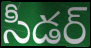
సీడర్